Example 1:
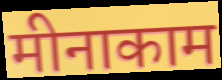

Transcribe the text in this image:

मीनाकाम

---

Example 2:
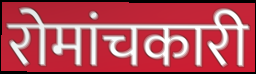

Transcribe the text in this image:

रोमांचकारी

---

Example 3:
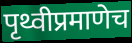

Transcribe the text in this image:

पृथ्वीप्रमाणेच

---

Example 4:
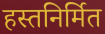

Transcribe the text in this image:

हस्तनिर्मित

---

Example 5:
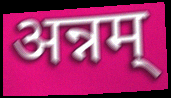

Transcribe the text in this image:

अन्नम्